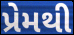
પ્રેમથી